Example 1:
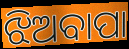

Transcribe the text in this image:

ଝିଅବାପା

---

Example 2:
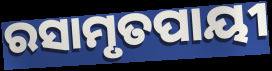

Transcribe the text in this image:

ରସାମୃତପାୟୀ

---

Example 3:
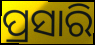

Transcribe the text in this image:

ପ୍ରସାରି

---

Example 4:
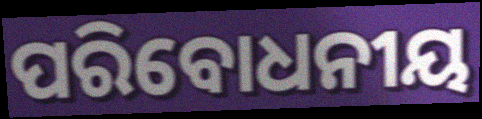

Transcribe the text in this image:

ପରିବୋଧନୀୟ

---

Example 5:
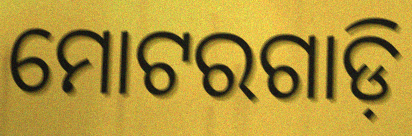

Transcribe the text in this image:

ମୋଟରଗାଡ଼ି